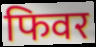
फिवर